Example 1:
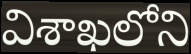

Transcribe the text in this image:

విశాఖలోని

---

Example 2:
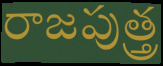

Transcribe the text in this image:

రాజపుత్త్ర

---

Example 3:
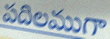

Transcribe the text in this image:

పదిలముగా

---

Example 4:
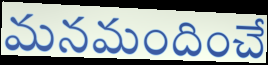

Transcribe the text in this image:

మనమందించే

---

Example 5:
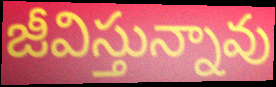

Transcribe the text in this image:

జీవిస్తున్నావు